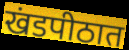
खंडपीठात